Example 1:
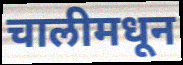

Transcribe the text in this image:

चालीमधून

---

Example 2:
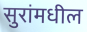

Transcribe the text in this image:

सुरांमधील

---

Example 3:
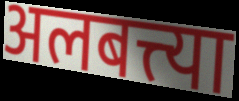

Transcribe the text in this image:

अलबत्त्या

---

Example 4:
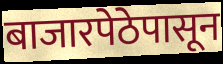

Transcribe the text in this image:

बाजारपेठेपासून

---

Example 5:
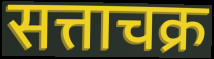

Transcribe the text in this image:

सत्ताचक्र